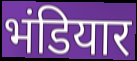
भंडियार